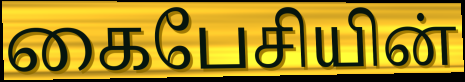
கைபேசியின்